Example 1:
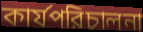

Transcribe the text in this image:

কার্যপরিচালনা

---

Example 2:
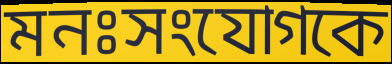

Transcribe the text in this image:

মনঃসংযোগকে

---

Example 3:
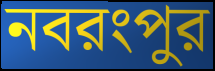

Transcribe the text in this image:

নবরংপুর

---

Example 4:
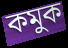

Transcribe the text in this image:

কমুক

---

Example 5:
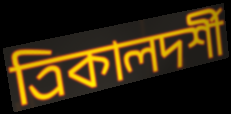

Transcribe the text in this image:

ত্রিকালদর্শী